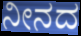
ನೀನದ